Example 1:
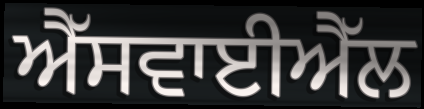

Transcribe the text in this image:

ਐੱਸਵਾਈਐੱਲ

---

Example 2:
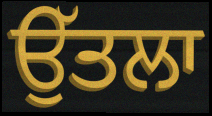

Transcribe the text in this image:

ਉੱਤਲਾ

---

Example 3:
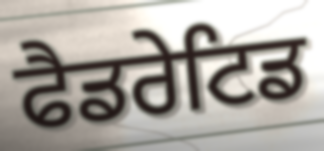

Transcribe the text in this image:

ਫੈਡਰੇਟਿਡ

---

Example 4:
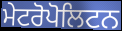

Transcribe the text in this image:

ਮੇਟਰੋਪੋਲਿਟਨ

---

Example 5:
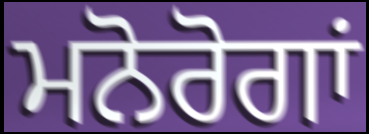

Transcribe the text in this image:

ਮਨੋਰੋਗਾਂ